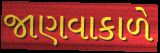
જાણવાકાળે